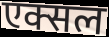
एक्सल